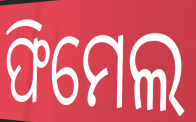
ଫିମେଲ